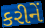
કરીનેં